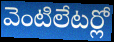
వెంటిలేటర్లో